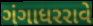
ગંગાધરરાવે